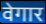
वेगार